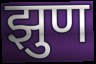
झुण